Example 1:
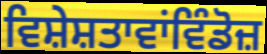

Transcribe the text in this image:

ਵਿਸ਼ੇਸ਼ਤਾਵਾਂਵਿੰਡੋਜ਼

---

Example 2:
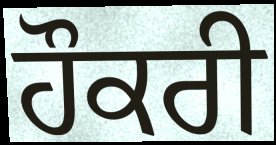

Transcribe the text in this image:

ਹੌਕਰੀ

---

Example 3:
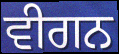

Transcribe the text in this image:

ਵੀਗਨ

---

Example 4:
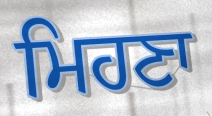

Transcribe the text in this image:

ਮਿਹਣਾ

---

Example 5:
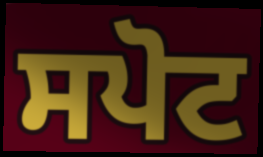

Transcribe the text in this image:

ਸਪੋਟ